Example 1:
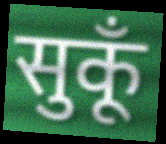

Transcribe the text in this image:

सुकूँ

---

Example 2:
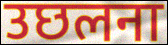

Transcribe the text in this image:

उछलना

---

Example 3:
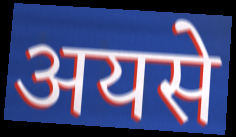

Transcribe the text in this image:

अयसे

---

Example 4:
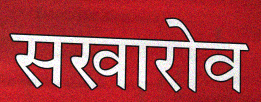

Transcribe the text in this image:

सखारोव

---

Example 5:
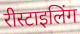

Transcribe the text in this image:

रीस्टाइलिंग